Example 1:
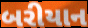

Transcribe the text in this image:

બરીયાન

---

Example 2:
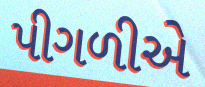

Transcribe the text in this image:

પીગળીએ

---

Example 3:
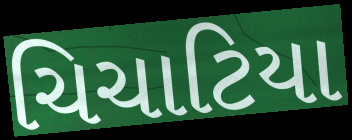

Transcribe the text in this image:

ચિચાટિયા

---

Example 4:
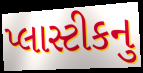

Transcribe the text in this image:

પ્લાસ્ટીકનુ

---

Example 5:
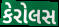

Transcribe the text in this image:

કેરોલસ